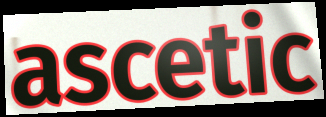
ascetic